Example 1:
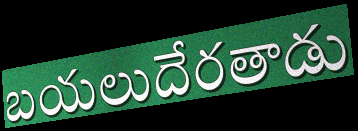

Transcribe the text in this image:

బయలుదేరతాడు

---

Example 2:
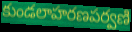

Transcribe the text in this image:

కుండలాహరణపర్వణి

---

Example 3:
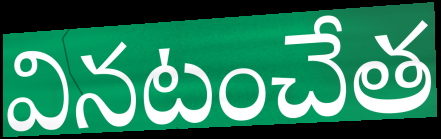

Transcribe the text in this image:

వినటంచేత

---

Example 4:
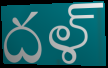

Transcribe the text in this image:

దళ్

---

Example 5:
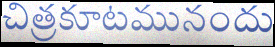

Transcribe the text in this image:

చిత్రకూటమునందు